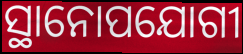
ସ୍ଥାନୋପଯୋଗୀ